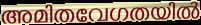
അമിതവേഗതയിൽ